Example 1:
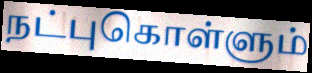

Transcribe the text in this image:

நட்புகொள்ளும்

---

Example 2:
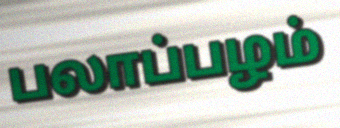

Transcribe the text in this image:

பலாப்பழம்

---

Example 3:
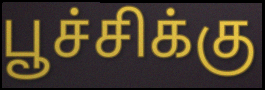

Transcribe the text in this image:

பூச்சிக்கு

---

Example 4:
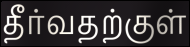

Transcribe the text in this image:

தீர்வதற்குள்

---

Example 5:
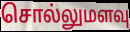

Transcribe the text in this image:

சொல்லுமளவு